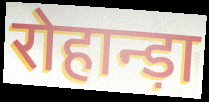
रोहान्ड़ा